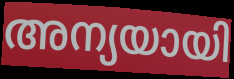
അന്യയായി